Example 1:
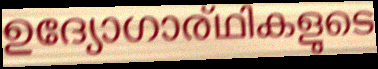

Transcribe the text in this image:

ഉദ്യോഗാര്ഥികളുടെ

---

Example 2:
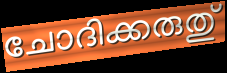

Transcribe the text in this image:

ചോദിക്കരുതു്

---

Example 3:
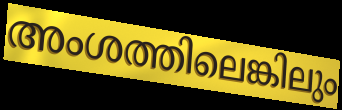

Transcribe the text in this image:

അംശത്തിലെങ്കിലും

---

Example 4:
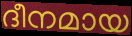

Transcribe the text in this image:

ദീനമായ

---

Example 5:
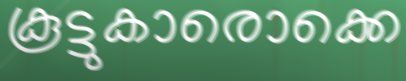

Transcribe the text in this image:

കൂട്ടുകാരൊക്കെ